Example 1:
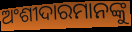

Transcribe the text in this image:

ଅଂଶୀଦାରମାନଙ୍କୁ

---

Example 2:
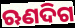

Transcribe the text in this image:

ଋଣଦିଗ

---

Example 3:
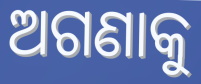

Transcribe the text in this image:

ଅଗଣାକୁ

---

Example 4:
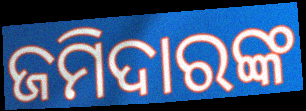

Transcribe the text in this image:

ଜମିଦାରଙ୍କ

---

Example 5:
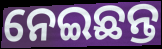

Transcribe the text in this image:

ନେଇଛନ୍ତ